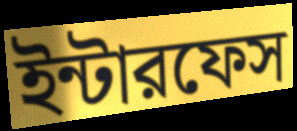
ইন্টারফেস